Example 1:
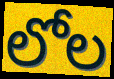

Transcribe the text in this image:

లోల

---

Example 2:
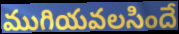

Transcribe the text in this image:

ముగియవలసిందే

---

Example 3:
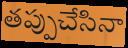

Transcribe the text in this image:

తప్పుచేసినా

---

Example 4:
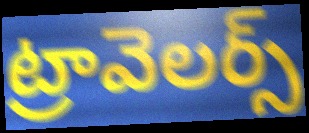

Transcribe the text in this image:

ట్రావెలర్స్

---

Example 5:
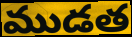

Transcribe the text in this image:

ముడత